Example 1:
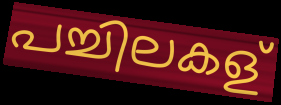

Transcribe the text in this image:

പച്ചിലകള്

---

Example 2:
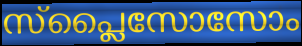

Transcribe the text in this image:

സ്പ്ലൈസോസോം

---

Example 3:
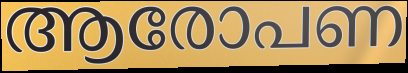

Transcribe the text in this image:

ആരോപണ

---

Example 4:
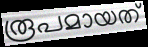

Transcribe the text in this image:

രൂപമായത്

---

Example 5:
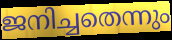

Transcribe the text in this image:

ജനിച്ചതെന്നും